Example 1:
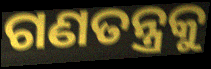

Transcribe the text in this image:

ଗଣତନ୍ତ୍ରକୁ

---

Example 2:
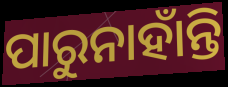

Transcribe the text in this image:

ପାରୁନାହାଁନ୍ତି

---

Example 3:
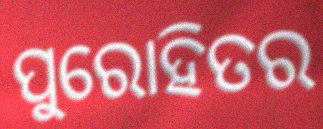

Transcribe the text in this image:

ପୁରୋହିତର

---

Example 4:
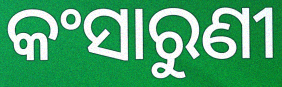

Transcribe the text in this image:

କଂସାରୁଣୀ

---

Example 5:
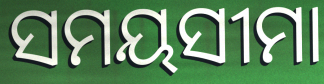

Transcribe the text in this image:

ସମୟସୀମା